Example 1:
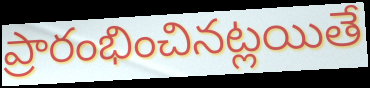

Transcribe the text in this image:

ప్రారంభించినట్లయితే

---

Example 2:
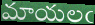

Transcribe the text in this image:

మాయలఁ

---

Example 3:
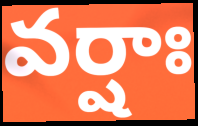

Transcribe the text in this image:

వర్షాః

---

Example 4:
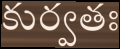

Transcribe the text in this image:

కుర్వతః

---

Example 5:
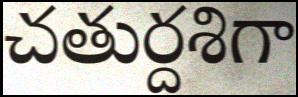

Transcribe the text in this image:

చతుర్దశిగా